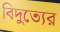
বিদুত্যের